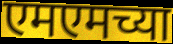
एमएमच्या